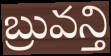
బ్రువన్తి